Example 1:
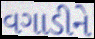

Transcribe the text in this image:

વગાડીને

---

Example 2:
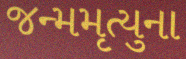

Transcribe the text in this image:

જન્મમૃત્યુના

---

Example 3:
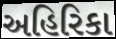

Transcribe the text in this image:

અહિરિકા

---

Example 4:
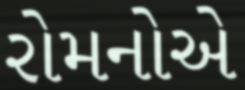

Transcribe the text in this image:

રોમનોએ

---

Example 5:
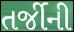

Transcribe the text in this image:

તર્જીની